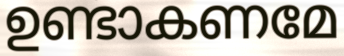
ഉണ്ടാകണമേ